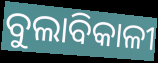
ବୁଲାବିକାଳୀ